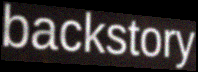
backstory